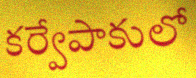
కర్వేపాకులో